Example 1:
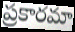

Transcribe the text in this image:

ప్రకారమా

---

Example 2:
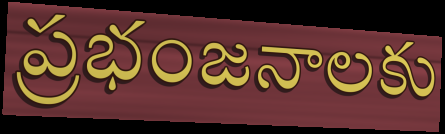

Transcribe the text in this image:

ప్రభంజనాలకు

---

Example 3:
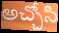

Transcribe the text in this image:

అచ్చోసి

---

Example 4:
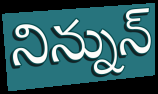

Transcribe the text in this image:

నిన్నున్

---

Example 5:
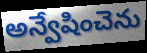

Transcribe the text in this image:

అన్వేషించెను